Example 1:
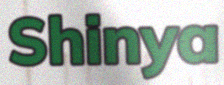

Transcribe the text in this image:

Shinya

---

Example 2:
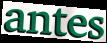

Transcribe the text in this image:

antes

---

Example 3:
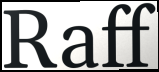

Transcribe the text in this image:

Raff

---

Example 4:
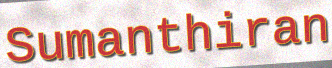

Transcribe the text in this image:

Sumanthiran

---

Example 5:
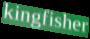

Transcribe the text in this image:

kingfisher